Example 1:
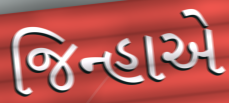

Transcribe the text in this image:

જિન્હાએ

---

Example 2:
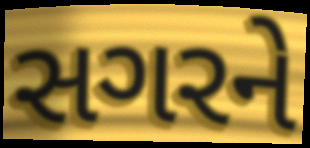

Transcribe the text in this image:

સગરને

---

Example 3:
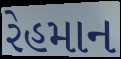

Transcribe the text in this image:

રેહમાન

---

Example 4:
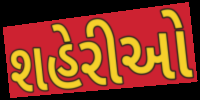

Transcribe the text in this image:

શહેરીઓ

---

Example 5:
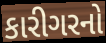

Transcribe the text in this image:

કારીગરનો